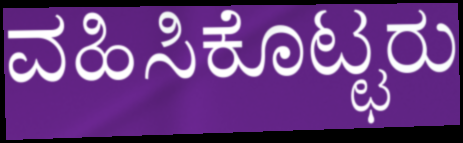
ವಹಿಸಿಕೊಟ್ಟರು